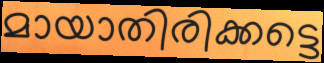
മായാതിരിക്കട്ടെ